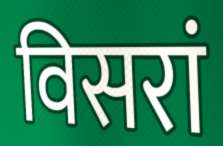
विसरां